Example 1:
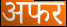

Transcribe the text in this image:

अफर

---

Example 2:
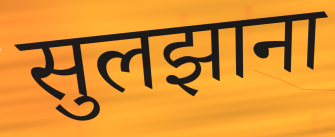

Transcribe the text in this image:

सुलझाना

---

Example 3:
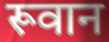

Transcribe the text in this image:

रूवान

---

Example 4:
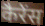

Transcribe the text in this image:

कैरेंस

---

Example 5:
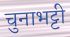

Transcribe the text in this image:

चुनाभट्टी